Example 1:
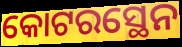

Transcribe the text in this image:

କୋଟରସ୍ଥେନ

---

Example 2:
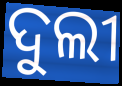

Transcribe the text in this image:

ଦୁଲୀ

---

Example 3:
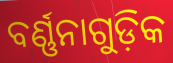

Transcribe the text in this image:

ବର୍ଣ୍ଣନାଗୁଡ଼ିକ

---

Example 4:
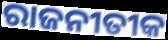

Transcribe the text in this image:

ରାଜନୀତୀକ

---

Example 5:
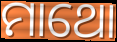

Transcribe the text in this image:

ମାଥୋ